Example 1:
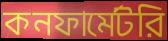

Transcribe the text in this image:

কনফার্মেটরি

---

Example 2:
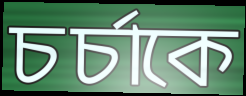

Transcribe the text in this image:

চর্চাকে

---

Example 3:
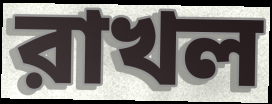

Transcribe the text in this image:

রাখল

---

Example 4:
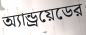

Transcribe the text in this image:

অ্যান্ড্রয়েডের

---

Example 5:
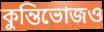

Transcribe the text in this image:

কুন্তিভোজও